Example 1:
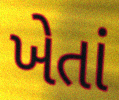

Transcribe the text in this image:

ખેતાં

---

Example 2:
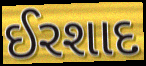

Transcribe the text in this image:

ઈરશાદ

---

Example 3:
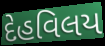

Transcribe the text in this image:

દેહવિલય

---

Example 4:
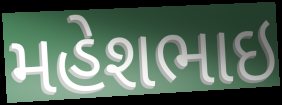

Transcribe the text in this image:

મહેશભાઇ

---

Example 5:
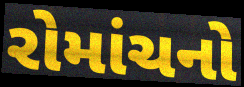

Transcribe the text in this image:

રોમાંચનો